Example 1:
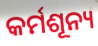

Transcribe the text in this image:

କର୍ମଶୂନ୍ୟ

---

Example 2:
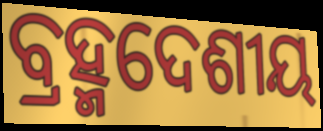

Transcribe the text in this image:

ବ୍ରହ୍ମଦେଶୀୟ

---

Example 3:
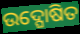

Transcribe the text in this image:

ଉଦ୍ଘୋଷିତ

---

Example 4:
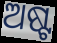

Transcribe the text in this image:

ଅଷ୍ଟ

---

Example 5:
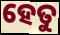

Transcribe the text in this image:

ହେତୁ